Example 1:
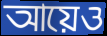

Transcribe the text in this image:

আয়েও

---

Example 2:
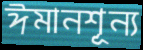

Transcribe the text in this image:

ঈমানশূন্য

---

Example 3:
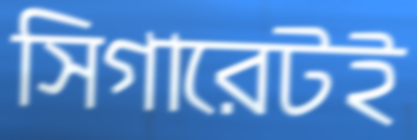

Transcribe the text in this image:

সিগারেটই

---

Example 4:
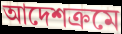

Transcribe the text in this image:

আদেশক্রমে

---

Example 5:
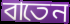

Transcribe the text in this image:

বাতেন